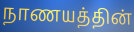
நாணயத்தின்